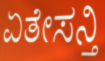
ಏತೇಸನ್ತಿ